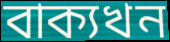
বাক্যখন